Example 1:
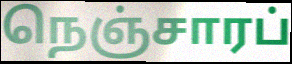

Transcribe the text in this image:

நெஞ்சாரப்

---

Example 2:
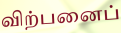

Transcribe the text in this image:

விற்பனைப்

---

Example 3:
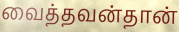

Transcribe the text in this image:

வைத்தவன்தான்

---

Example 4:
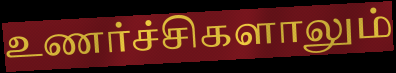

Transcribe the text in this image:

உணர்ச்சிகளாலும்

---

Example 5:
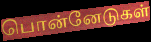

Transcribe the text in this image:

பொன்னேடுகள்